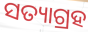
ସତ୍ୟାଗ୍ରହ